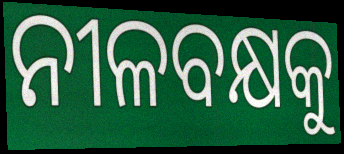
ନୀଳବକ୍ଷକୁ